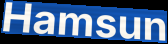
Hamsun